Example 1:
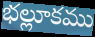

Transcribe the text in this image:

భల్లూకము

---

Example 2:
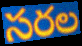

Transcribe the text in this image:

సరల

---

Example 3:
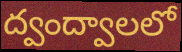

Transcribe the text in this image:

ద్వంద్వాలలో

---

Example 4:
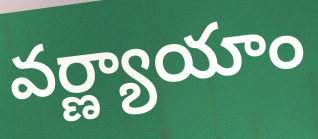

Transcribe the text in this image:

వర్ణ్యాయాం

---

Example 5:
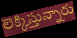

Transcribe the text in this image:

లెక్కిస్తున్నారు